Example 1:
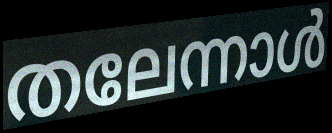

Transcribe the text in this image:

തലേന്നാൾ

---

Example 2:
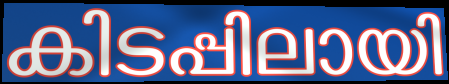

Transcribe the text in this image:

കിടപ്പിലായി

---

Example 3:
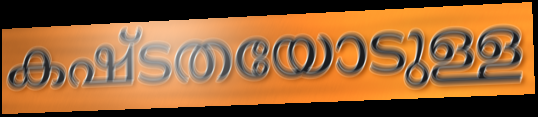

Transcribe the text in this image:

കഷ്ടതയോടുള്ള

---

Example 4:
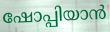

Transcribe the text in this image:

ഷോപ്പിയാൻ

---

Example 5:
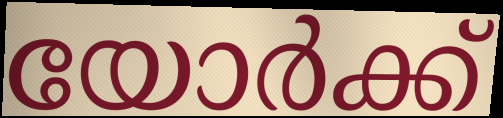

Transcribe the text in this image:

യോർക്ക്